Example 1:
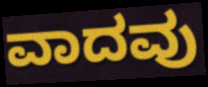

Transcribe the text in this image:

ವಾದವು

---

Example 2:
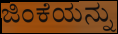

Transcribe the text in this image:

ಜಿಂಕೆಯನ್ನು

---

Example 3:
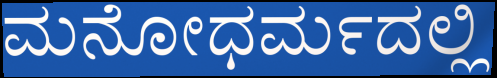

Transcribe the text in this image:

ಮನೋಧರ್ಮದಲ್ಲಿ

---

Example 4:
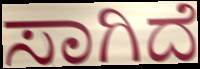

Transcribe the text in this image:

ಸಾಗಿದೆ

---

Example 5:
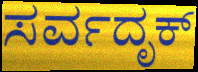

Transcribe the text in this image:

ಸರ್ವದೃಕ್